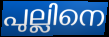
പുല്ലിനെ